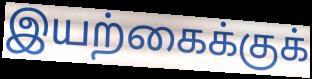
இயற்கைக்குக்